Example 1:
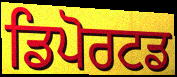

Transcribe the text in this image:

ਡਿਪੋਰਟਡ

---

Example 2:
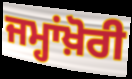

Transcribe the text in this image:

ਜਮ੍ਹਾਂਖ਼ੋਰੀ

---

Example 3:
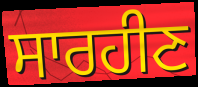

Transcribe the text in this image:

ਸਾਰਹੀਣ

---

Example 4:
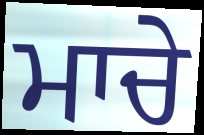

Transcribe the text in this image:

ਮਾਚੇ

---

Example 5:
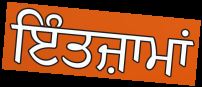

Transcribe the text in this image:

ਇੰਤਜ਼ਾਮਾਂ